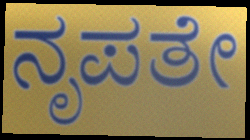
ನೃಪತೇ